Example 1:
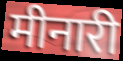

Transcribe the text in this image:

मीनारी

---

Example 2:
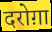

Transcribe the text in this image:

दरोग़ा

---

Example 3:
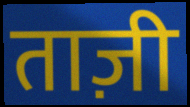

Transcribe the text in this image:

ताज़ी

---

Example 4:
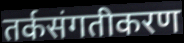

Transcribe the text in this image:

तर्कसंगतीकरण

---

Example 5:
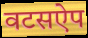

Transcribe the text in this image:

वटसऐप